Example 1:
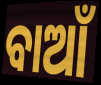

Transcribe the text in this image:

ବାଆଁ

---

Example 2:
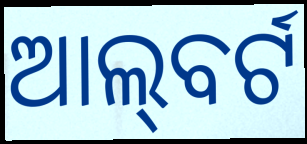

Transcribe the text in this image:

ଆଲ୍‌ବର୍ଟ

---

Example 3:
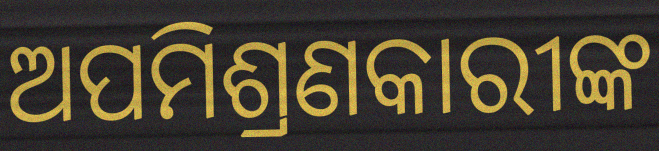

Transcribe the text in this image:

ଅପମିଶ୍ରଣକାରୀଙ୍କ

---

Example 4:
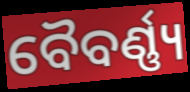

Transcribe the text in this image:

ବୈବର୍ଣ୍ଣ୍ୟ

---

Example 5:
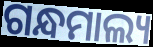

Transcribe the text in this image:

ଗନ୍ଧମାଲ୍ୟ